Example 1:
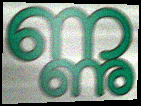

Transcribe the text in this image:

ണ്ണു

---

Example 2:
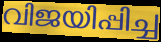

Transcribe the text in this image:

വിജയിപ്പിച്ച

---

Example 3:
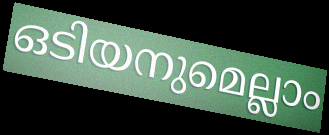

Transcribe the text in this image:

ഒടിയനുമെല്ലാം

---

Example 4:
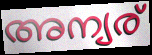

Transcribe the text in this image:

അന്യര്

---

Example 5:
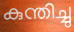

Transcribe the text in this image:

കുന്തിച്ചു